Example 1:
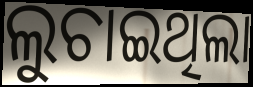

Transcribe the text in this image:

ଲୁଚାଇଥିଲା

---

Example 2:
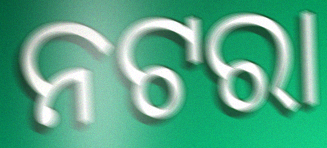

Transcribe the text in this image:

ନଟରା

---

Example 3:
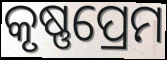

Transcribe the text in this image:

କୃଷ୍ଣପ୍ରେମ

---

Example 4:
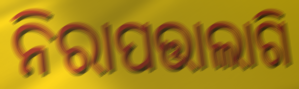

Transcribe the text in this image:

ନିରାପତ୍ତାଲାଗି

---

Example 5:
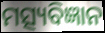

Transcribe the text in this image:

ମତ୍ସ୍ୟବିଜ୍ଞାନ